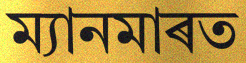
ম্যানমাৰত